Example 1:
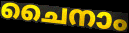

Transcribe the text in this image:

ചൈനാം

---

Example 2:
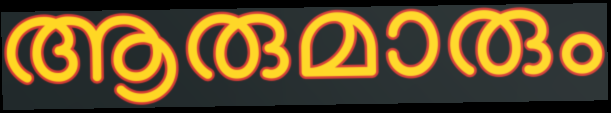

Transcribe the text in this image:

ആരുമാരും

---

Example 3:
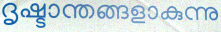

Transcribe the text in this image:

ദൃഷ്ടാന്തങ്ങളാകുന്നു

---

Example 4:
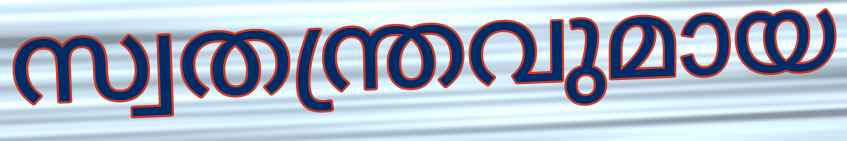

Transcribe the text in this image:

സ്വതന്ത്രവുമായ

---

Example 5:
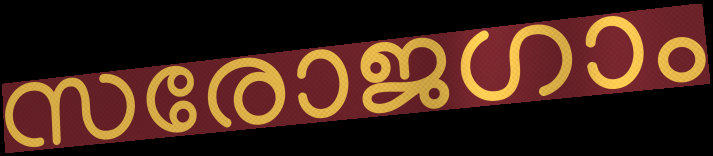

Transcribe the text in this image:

സരോജഗാം